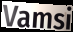
Vamsi